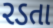
રડતા